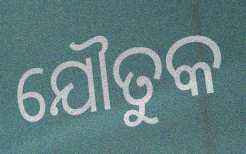
ଯୌତୁକ